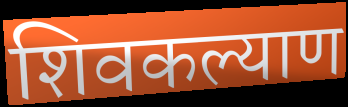
शिवकल्याण